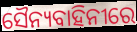
ସୈନ୍ଯବାହିନୀରେ